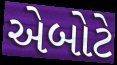
એબોટે